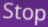
Stop